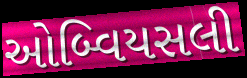
ઓબ્વિયસલી